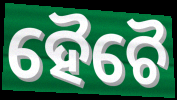
ହୈଚୈ